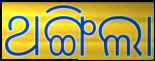
ଥଙ୍ଗିଲା